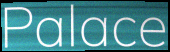
Palace